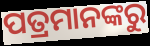
ପତ୍ରମାନଙ୍କରୁ